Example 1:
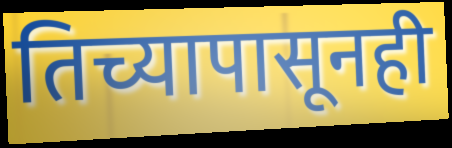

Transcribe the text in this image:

तिच्यापासूनही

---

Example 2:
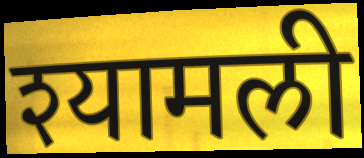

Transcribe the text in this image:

श्यामली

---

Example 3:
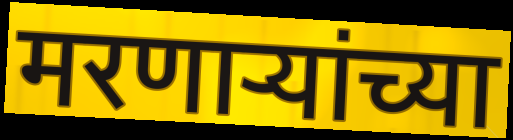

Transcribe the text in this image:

मरणाऱ्यांच्या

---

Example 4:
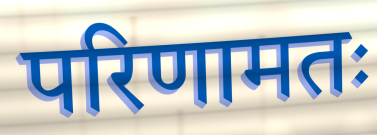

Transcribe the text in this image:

परिणामतः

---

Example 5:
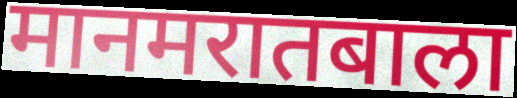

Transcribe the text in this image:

मानमरातबाला